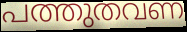
പത്തുതവണ